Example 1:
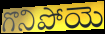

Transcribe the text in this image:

గొనిపోయె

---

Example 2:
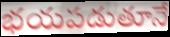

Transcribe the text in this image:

భయపడుతూనే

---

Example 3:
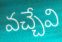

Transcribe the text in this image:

వచ్చేవి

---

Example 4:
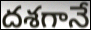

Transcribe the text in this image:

దశగానే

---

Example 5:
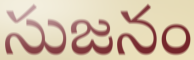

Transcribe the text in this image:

సుజనం